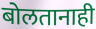
बोलतानाही